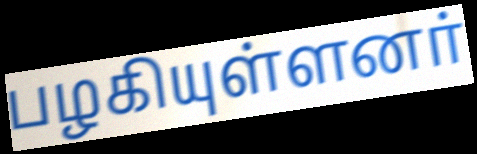
பழகியுள்ளனர்